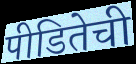
पीडितेची